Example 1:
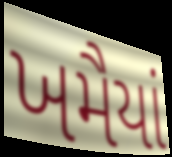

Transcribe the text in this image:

ખમૈયાં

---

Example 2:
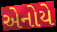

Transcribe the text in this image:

એનોયે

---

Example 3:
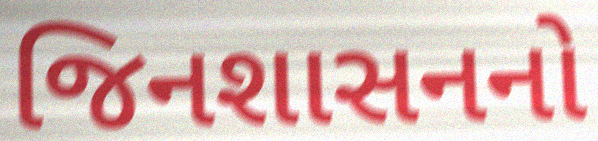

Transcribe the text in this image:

જિનશાસનનો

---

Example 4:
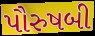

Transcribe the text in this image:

પૌરુષબી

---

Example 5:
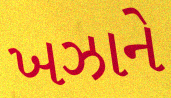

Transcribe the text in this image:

ખઝાને